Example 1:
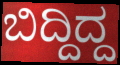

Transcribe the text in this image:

ಬಿದ್ದಿದ್ದ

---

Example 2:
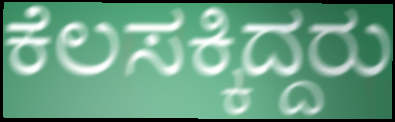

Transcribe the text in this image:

ಕೆಲಸಕ್ಕಿದ್ದರು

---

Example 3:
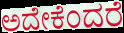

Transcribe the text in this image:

ಅದೇಕೆಂದರೆ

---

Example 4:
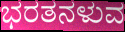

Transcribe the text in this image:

ಭರತನಳುವ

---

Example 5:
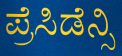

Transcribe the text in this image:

ಪ್ರೆಸಿಡೆನ್ಸಿ